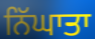
ਨਿੱਘਾਤਾ